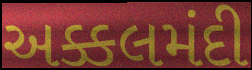
અક્કલમંદી